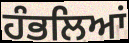
ਹੰਭਲਿਆਂ